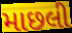
માછલી